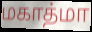
மகாத்மா